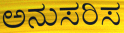
ಅನುಸರಿಸ